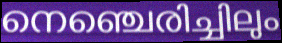
നെഞ്ചെരിച്ചിലും